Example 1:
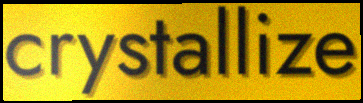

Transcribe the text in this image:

crystallize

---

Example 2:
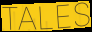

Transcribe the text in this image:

TALES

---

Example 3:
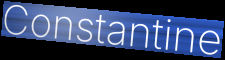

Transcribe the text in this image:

Constantine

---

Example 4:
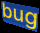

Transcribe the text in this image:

bug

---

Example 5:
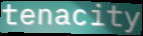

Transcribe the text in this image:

tenacity